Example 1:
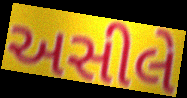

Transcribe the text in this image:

અસીલે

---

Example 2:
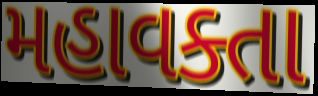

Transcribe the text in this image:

મહાવક્તા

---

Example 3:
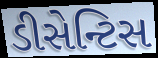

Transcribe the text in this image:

ડીસેન્ટિસ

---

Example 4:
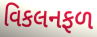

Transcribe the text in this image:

વિકલનફળ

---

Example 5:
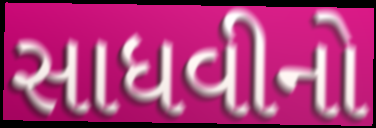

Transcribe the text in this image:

સાધવીનો